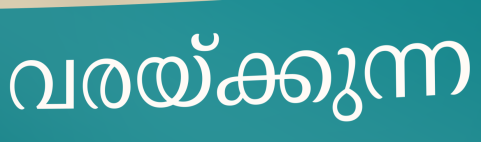
വരയ്ക്കുന്ന